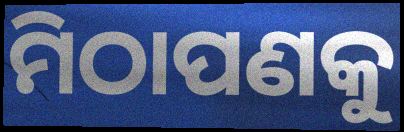
ମିଠାପଣକୁ